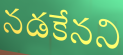
నడకేనని